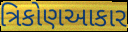
ત્રિકોણઆકાર